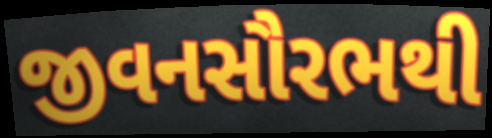
જીવનસૌરભથી